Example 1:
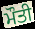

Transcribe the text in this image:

ਮੌਤੀ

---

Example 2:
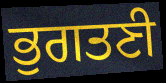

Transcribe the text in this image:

ਭੁਗਤਣੀ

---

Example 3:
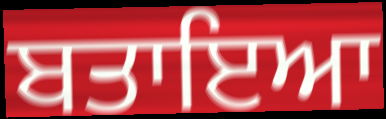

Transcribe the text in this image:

ਬਤਾਇਆ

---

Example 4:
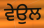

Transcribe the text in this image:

ਵੇਉਲ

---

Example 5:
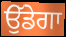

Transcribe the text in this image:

ਉੱਡੇਗਾ